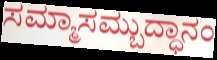
ಸಮ್ಮಾಸಮ್ಬುದ್ಧಾನಂ